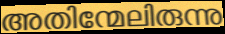
അതിന്മേലിരുന്നു